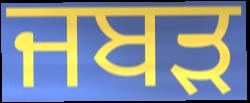
ਜਬੜ